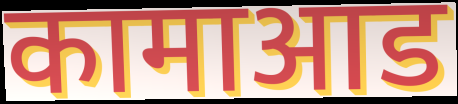
कामाआड